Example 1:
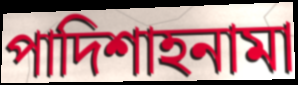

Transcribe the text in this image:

পাদিশাহনামা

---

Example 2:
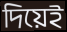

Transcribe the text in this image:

দিয়েই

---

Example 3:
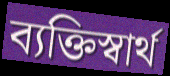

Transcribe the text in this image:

ব্যক্তিস্বার্থ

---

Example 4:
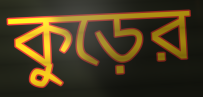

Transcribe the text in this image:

কুড়ের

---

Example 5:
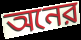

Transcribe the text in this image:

অনের